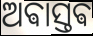
ଅଵାସ୍ତଵ